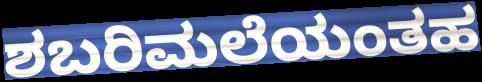
ಶಬರಿಮಲೆಯಂತಹ